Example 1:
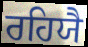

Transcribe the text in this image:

ਰਹਿਯੈ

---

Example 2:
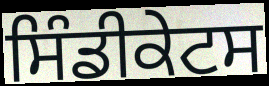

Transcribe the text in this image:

ਸਿੰਡੀਕੇਟਸ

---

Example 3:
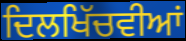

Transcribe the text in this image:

ਦਿਲਖਿੱਚਵੀਆਂ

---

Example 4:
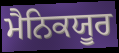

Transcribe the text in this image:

ਮੈਨਿਕਯੂਰ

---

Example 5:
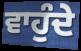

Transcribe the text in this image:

ਵਾਹੁੰਦੇ